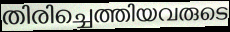
തിരിച്ചെത്തിയവരുടെ